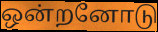
ஒன்றனோடு